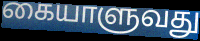
கையாளுவது